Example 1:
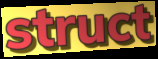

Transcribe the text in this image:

struct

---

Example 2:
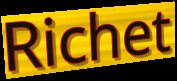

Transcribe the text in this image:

Richet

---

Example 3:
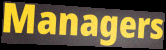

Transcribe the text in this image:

Managers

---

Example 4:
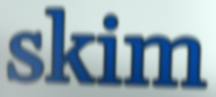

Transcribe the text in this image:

skim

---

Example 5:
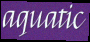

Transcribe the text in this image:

aquatic